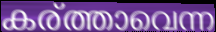
കര്ത്താവെന്ന